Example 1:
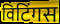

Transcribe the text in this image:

विटिंगस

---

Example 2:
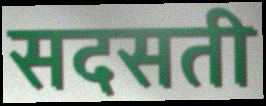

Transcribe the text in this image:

सदसती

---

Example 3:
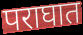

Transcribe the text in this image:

पराघात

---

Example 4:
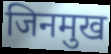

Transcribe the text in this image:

जिनमुख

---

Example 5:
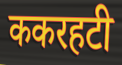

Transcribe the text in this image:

ककरहटी